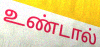
உண்டால்